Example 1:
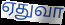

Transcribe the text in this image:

ஏதுவா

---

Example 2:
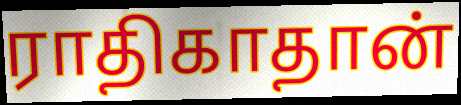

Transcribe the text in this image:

ராதிகாதான்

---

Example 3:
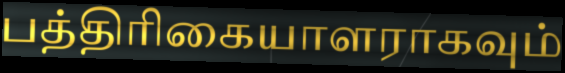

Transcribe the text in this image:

பத்திரிகையாளராகவும்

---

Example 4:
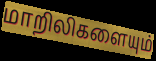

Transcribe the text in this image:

மாறிலிகளையும்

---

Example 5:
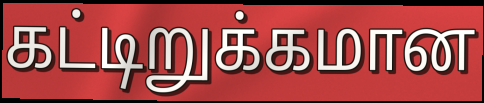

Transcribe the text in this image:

கட்டிறுக்கமான